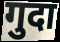
गुदा